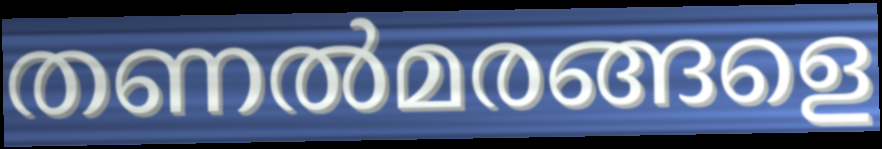
തണൽമരങ്ങളെ